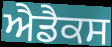
ਐਡੈਕਸ